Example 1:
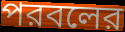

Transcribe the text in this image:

পরবলের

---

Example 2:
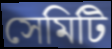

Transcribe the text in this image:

সেমিটি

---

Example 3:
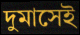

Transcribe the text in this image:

দুমাসেই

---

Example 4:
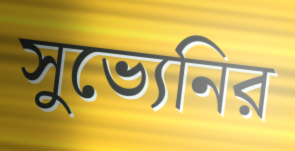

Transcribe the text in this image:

সুভ্যেনির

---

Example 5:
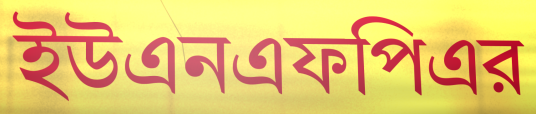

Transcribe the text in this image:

ইউএনএফপিএর